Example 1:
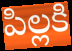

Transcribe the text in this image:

పిల్లకి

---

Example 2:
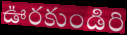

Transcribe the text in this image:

ఊరకుండిరి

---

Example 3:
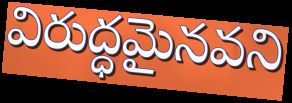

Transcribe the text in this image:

విరుద్ధమైనవని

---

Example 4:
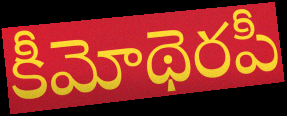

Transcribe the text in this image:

కీమోథెరపీ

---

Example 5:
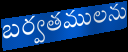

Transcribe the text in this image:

బర్వతములను